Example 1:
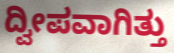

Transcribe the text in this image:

ದ್ವೀಪವಾಗಿತ್ತು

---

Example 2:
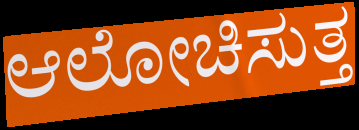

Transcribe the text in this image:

ಆಲೋಚಿಸುತ್ತ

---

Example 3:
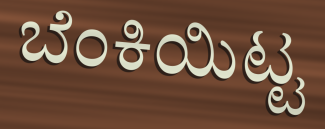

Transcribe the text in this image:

ಬೆಂಕಿಯಿಟ್ಟ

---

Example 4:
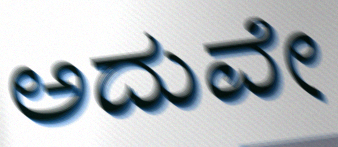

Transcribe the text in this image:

ಅದುವೇ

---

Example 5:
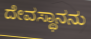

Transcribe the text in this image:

ದೇವಸ್ಥಾನನು